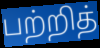
பற்றித்